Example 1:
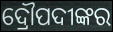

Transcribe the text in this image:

ଦ୍ରୌପଦୀଙ୍କର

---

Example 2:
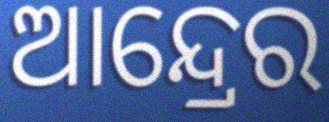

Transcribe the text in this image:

ଆନ୍ଦ୍ରେର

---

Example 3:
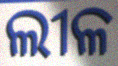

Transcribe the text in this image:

ଲୀଳ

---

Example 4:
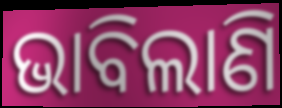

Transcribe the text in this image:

ଭାବିଲାଣି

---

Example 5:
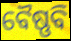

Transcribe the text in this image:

ବୈଷ୍ଣବି